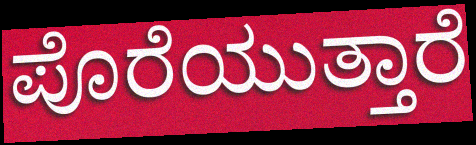
ಪೊರೆಯುತ್ತಾರೆ